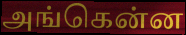
அங்கென்ன